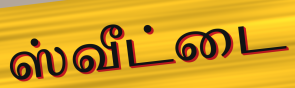
ஸ்வீட்டை